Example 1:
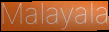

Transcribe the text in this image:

Malayala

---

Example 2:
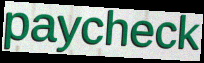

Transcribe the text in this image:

paycheck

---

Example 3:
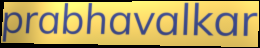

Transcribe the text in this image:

prabhavalkar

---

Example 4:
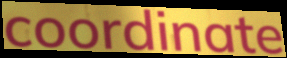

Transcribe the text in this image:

coordinate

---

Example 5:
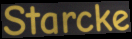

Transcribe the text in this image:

Starcke